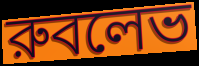
রুবলেভ